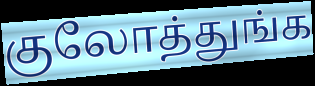
குலோத்துங்க